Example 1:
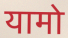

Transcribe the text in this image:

यामो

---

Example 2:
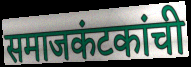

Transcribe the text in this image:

समाजकंटकांची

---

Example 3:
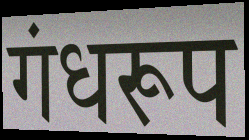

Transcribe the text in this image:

गंधरूप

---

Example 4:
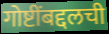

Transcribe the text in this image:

गोष्टींबद्दलची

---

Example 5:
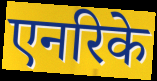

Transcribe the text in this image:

एनरिके